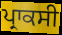
ਪ੍ਰਾਕਸੀ